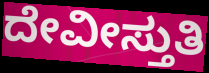
ದೇವೀಸ್ತುತಿ